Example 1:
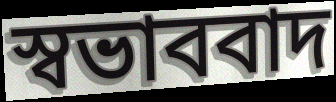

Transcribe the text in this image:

স্বভাববাদ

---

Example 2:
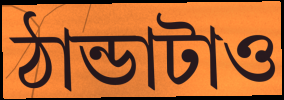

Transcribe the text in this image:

ঠান্ডাটাও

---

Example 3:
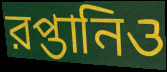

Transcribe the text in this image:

রপ্তানিও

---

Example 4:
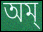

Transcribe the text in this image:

অম্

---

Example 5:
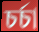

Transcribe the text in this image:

চর্চা